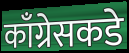
काँग्रेसकडे